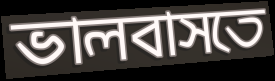
ভালবাসতে